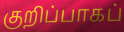
குறிப்பாகப்